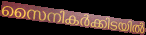
സൈനികർക്കിടയിൽ